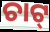
ଚାଟ୍